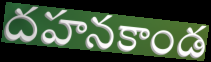
దహనకాండ